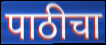
पाठीचा